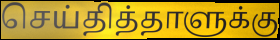
செய்தித்தாளுக்கு